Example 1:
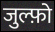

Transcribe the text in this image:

जुल्फ़ो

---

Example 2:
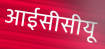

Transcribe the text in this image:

आईसीसीयू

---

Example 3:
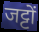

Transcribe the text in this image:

जट्टों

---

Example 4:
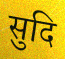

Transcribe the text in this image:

सुदि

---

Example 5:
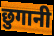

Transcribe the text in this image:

छुगानी